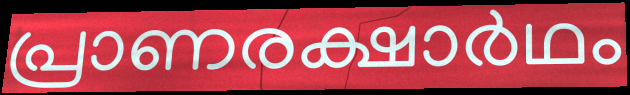
പ്രാണരക്ഷാർഥം